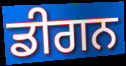
ਡੀਗਨ